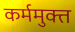
कर्ममुक्त